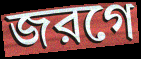
জরগে